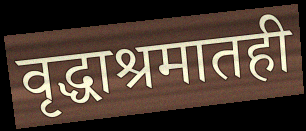
वृद्धाश्रमातही